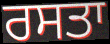
ਰਸਤਾ